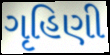
ગૃહિણી